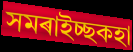
সমৰাইচ্ছকহা